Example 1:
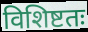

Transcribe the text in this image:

विशिष्टतः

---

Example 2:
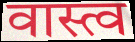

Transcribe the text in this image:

वास्त्व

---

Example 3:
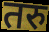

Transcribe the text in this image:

तरु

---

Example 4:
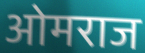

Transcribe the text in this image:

ओमराज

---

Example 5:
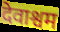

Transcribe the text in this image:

देवाश्वम